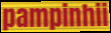
pampinhii